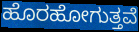
ಹೊರಹೋಗುತ್ತವೆ